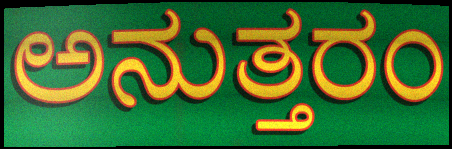
ಅನುತ್ತರಂ